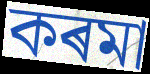
কৰমা